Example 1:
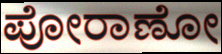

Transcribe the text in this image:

ಪೋರಾಣೋ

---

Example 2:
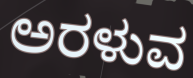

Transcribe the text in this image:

ಅರಳುವ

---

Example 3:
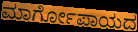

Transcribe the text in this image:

ಮಾರ್ಗೋಪಾಯದ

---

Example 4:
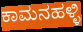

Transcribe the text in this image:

ಕಾಮನಹಳ್ಳಿ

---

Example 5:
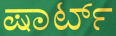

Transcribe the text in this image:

ಷಾರ್ಟ್